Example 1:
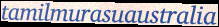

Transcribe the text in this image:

tamilmurasuaustralia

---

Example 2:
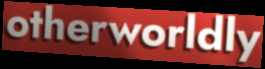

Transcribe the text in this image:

otherworldly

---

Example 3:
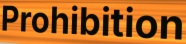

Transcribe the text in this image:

Prohibition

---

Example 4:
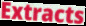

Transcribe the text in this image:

Extracts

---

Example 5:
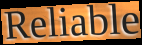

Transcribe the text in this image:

Reliable